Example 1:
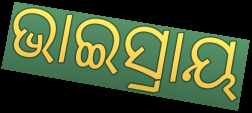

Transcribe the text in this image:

ଭାଇସ୍ରାୟ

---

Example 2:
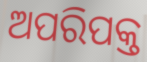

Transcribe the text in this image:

ଅପରିପକ୍ତ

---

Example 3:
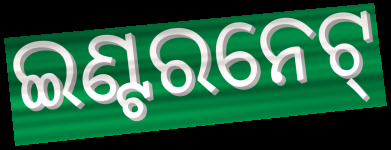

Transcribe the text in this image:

ଇଣ୍ଟରନେଟ୍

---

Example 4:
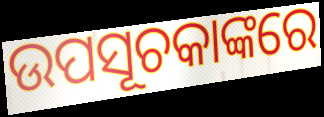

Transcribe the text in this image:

ଉପସୂଚକାଙ୍କରେ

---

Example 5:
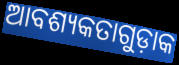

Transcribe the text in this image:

ଆବଶ୍ୟକତାଗୁଡ଼ାକ